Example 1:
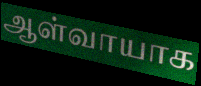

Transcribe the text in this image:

ஆள்வாயாக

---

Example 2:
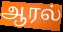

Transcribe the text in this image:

ஆரல்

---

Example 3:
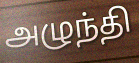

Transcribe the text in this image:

அழுந்தி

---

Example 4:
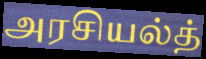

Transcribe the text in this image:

அரசியல்த்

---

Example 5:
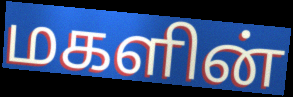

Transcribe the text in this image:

மகளின்